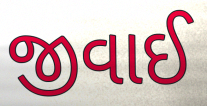
જીવાઈ